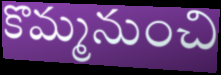
కొమ్మనుంచి